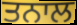
ਤਨਾਲ